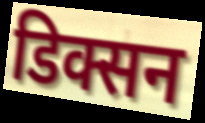
डिक्सन